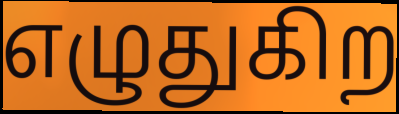
எழுதுகிற